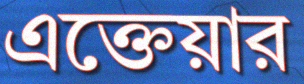
এক্তেয়ার